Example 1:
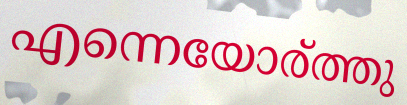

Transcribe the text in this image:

എന്നെയോര്ത്തു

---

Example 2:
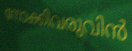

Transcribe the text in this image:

നോക്കിവരുവിൻ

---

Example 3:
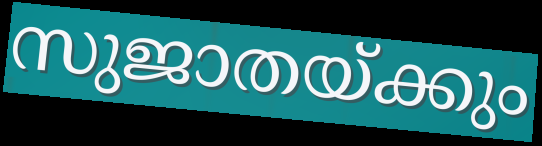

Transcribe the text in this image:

സുജാതയ്ക്കും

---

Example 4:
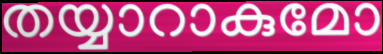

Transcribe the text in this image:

തയ്യാറാകുമോ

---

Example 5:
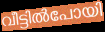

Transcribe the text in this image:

വീട്ടിൽപോയി